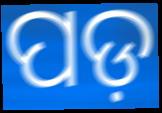
ପଡ଼